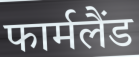
फार्मलैंड